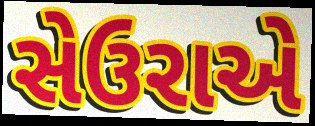
સેઉરાએ